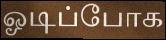
ஓடிப்போக